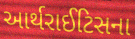
આર્થરાઈટિસના